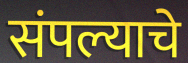
संपल्याचे